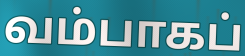
வம்பாகப்